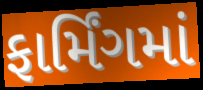
ફાર્મિંગમાં